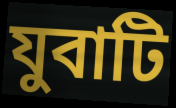
যুবাটি